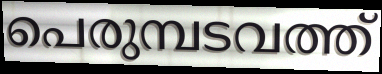
പെരുമ്പടവത്ത്